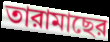
তারামাছের